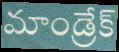
మాండ్రేక్